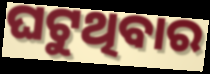
ଘଟୁଥିବାର